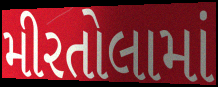
મીરતોલામાં